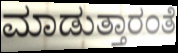
ಮಾಡುತ್ತಾರಂತೆ